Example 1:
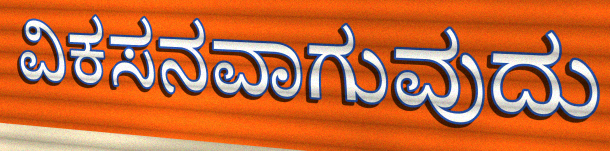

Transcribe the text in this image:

ವಿಕಸನವಾಗುವುದು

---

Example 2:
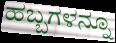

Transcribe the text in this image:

ಹಬ್ಬಗಳನ್ನೂ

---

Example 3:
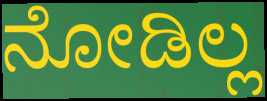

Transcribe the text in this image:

ನೋಡಿಲ್ಲ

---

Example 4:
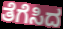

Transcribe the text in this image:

ತೆಗೆಸಿದ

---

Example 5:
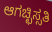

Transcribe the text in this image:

ಆಗಚ್ಛಿಸ್ಸತಿ